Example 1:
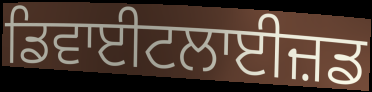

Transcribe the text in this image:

ਡਿਵਾਈਟਲਾਈਜ਼ਡ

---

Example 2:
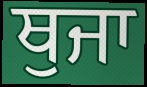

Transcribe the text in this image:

ਥੁਜਾ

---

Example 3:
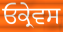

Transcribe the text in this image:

ਓਕ੍ਰੇਵਸ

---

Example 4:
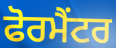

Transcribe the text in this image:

ਫੋਰਮੈਂਟਰ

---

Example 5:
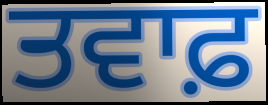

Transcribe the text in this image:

ਤਵਾਫ਼